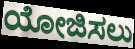
ಯೋಜಿಸಲು